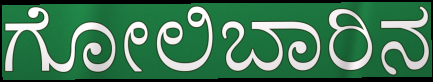
ಗೋಲಿಬಾರಿನ